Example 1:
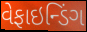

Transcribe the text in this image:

વેફાઇન્ડિંગ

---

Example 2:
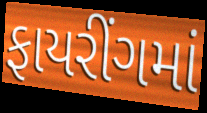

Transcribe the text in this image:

ફાયરીંગમાં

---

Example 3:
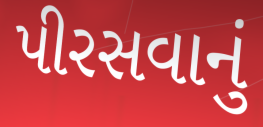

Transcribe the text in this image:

પીરસવાનું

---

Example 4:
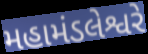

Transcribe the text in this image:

મહામંડલેશ્વરે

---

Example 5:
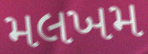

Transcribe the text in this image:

મલખમ